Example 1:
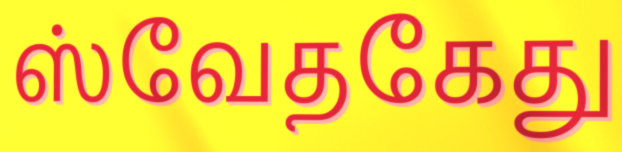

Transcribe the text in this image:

ஸ்வேதகேது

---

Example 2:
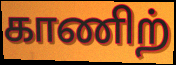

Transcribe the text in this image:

காணிற்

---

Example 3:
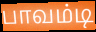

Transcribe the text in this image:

பாவம்டி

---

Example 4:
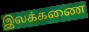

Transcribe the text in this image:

இலக்கணை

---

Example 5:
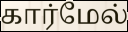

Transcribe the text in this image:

கார்மேல்